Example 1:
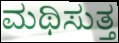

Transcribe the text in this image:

ಮಥಿಸುತ್ತ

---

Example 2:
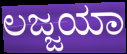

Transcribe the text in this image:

ಲಜ್ಜಯಾ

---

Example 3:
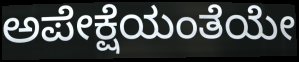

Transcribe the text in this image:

ಅಪೇಕ್ಷೆಯಂತೆಯೇ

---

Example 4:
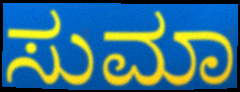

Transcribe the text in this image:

ಸುಮಾ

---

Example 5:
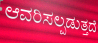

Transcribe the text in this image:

ಆವರಿಸಲ್ಪಡುತ್ತದೆ